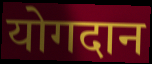
योगदान